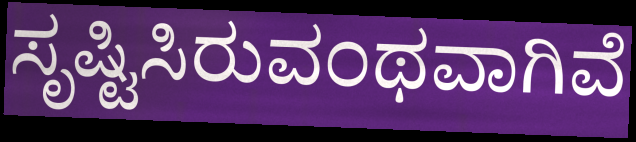
ಸೃಷ್ಟಿಸಿರುವಂಥವಾಗಿವೆ